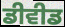
ਡੀਵੀਡ